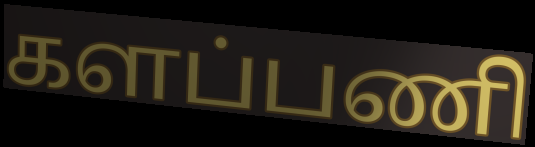
களப்பணி